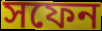
সফেন